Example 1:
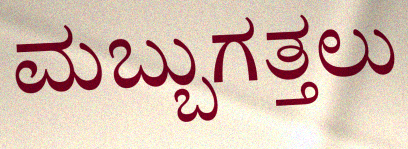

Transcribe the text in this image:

ಮಬ್ಬುಗತ್ತಲು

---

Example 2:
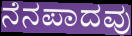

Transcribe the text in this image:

ನೆನಪಾದವು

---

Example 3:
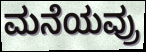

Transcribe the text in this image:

ಮನೆಯವ್ರು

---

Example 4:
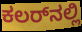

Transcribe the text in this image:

ಕಲರ್‌ನಲ್ಲಿ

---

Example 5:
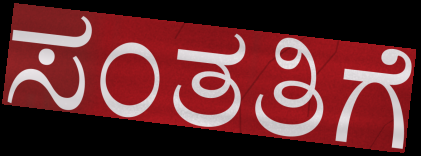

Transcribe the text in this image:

ಸಂತತಿಗೆ